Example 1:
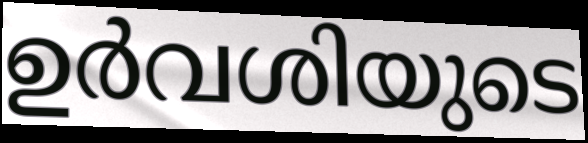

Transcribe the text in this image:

ഉർവശിയുടെ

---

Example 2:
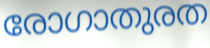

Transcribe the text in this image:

രോഗാതുരത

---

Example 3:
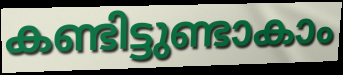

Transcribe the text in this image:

കണ്ടിട്ടുണ്ടാകാം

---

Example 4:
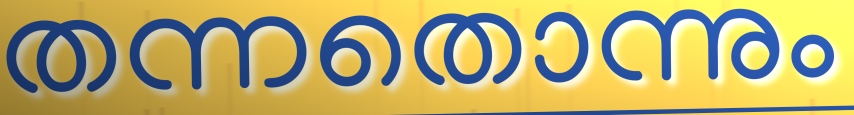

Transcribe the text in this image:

തന്നതൊന്നും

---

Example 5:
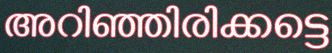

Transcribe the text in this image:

അറിഞ്ഞിരിക്കട്ടെ